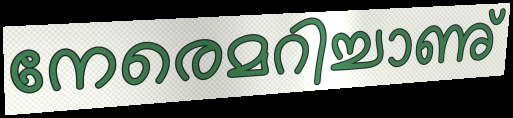
നേരെമറിച്ചാണു്